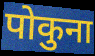
पोकुना